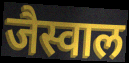
जैस्वाल